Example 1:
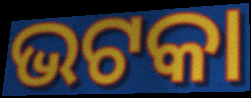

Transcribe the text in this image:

ଭଟକା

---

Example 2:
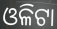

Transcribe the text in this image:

ଓଳିଟା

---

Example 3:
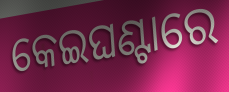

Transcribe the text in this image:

କେଇଘଣ୍ଟାରେ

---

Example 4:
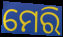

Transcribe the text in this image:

ମେରି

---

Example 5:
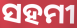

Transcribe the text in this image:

ସହମୀ